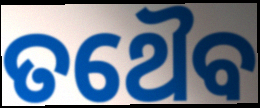
ତଥୈବ